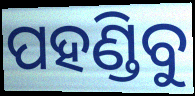
ପହଣ୍ଡିବୁ